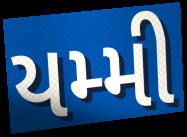
યમ્મી